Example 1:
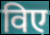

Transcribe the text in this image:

विए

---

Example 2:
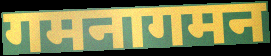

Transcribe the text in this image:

गमनागमन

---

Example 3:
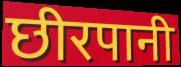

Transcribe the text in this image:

छीरपानी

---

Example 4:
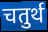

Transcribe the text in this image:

चतुर्थ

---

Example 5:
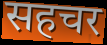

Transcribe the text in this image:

सहचर